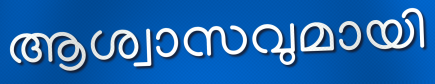
ആശ്വാസവുമായി